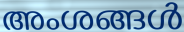
അംശങ്ങൾ